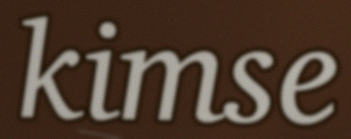
kimse